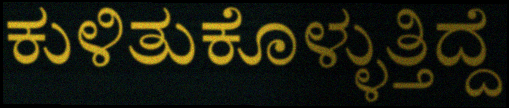
ಕುಳಿತುಕೊಳ್ಳುತ್ತಿದ್ದೆ